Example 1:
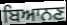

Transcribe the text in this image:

ਬਿਆਨਣ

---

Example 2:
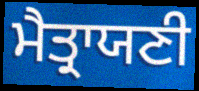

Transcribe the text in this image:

ਮੈਤ੍ਰਾਯਣੀ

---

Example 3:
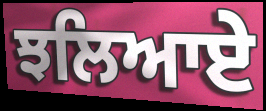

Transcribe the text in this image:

ਝਲਿਆਏ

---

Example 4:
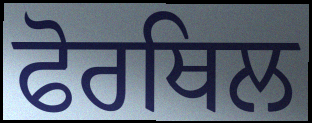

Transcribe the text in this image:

ਫੋਰਥਿਲ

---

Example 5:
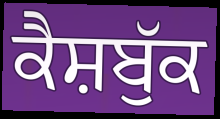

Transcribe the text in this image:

ਕੈਸ਼ਬੁੱਕ